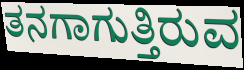
ತನಗಾಗುತ್ತಿರುವ